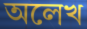
অলেখ